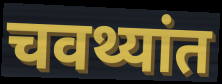
चवथ्यांत